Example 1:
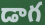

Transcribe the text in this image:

డాగ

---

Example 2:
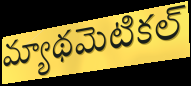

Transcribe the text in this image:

మ్యాథమెటికల్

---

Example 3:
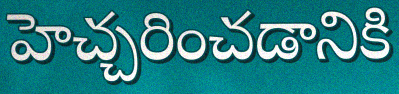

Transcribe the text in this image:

హెచ్చరించడానికి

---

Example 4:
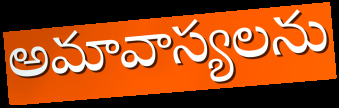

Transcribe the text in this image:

అమావాస్యలను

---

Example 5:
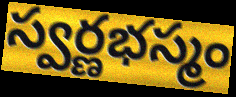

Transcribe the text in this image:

స్వర్ణభస్మం